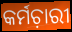
କର୍ମଚ଼ାରୀ